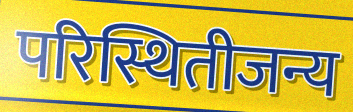
परिस्थितीजन्य